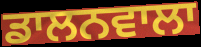
ਡਾਲਨਵਾਲਾ